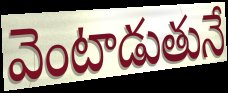
వెంటాడుతునే